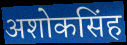
अशोकसिंह